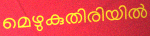
മെഴുകുതിരിയിൽ